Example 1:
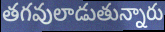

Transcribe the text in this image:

తగవులాడుతున్నారు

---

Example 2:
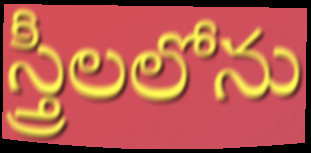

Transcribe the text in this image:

స్త్రీలలోను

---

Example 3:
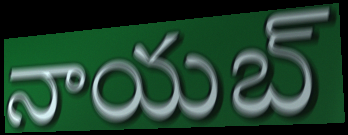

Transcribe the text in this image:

నాయబ్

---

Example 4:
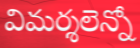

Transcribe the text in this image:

విమర్శలెన్నో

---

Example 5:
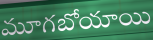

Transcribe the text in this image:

మూగబోయాయి